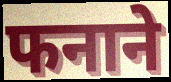
फनाने